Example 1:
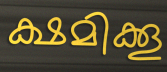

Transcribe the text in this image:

ക്ഷമിക്കൂ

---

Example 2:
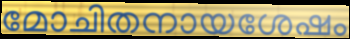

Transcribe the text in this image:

മോചിതനായശേഷം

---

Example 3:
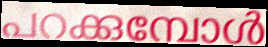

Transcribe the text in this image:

പറക്കുമ്പോൾ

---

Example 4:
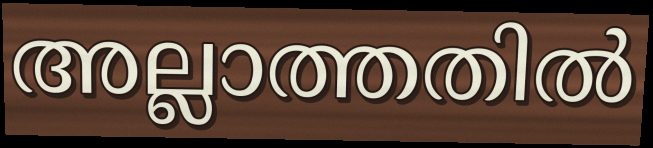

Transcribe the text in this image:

അല്ലാത്തതിൽ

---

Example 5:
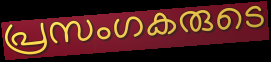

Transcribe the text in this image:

പ്രസംഗകരുടെ